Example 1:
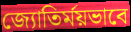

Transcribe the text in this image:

জ্যোতির্ময়ভাবে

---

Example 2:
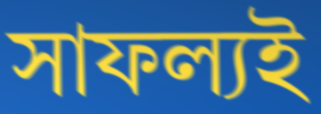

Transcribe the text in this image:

সাফল্যই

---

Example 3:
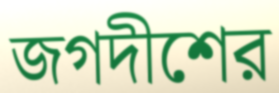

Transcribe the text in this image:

জগদীশের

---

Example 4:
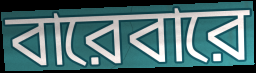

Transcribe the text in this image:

বারেবারে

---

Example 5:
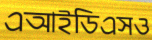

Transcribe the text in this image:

এআইডিএসও